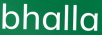
bhalla